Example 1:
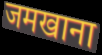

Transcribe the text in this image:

जमखाना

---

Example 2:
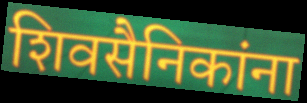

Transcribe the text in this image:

शिवसैनिकांना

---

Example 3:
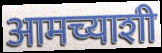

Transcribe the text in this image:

आमच्याशी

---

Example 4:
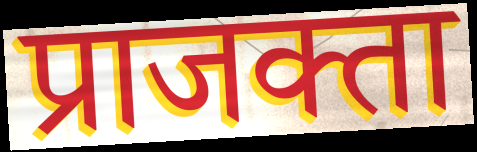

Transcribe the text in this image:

प्राजक्ता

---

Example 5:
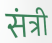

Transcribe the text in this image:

संत्री